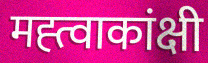
मह्त्वाकांक्षी